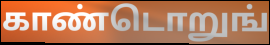
காண்டொறுங்